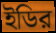
ইডির